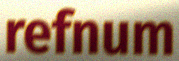
refnum